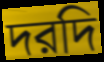
দরদি